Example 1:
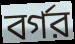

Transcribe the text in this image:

বর্গর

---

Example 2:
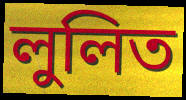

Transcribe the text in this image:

লুলিত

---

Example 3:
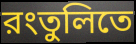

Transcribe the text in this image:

রংতুলিতে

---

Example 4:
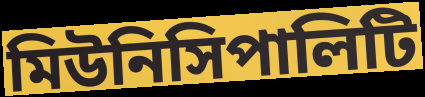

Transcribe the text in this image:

মিউনিসিপালিটি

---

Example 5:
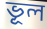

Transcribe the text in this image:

ভূল